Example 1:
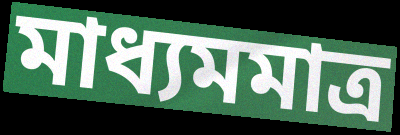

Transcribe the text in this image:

মাধ্যমমাত্র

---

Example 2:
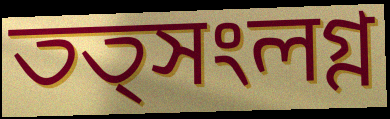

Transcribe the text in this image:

তত্সংলগ্ন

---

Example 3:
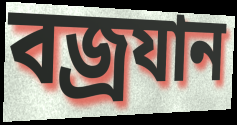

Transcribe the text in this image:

বজ্রযান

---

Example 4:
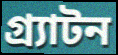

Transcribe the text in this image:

গ্র্যাটন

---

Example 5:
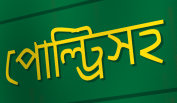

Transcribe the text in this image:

পোল্ট্রিসহ